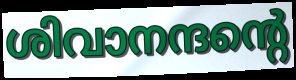
ശിവാനന്ദന്റെ